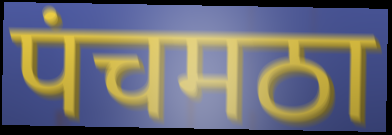
पंचमठा